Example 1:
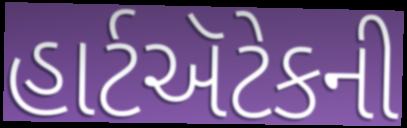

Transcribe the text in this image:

હાર્ટઍટેકની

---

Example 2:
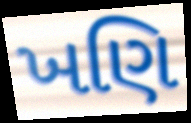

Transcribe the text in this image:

ખણિ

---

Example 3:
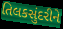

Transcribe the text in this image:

તિલકસુંદરીને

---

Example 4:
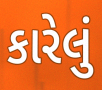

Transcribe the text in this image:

કારેલું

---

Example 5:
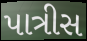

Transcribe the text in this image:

પાત્રીસ